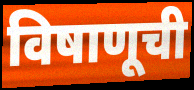
विषाणूची